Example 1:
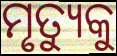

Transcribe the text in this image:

ମୃତ୍ୟୁକୁ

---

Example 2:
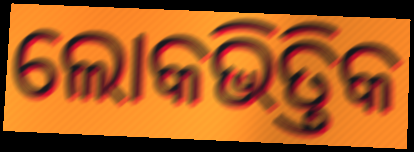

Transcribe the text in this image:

ଲୋକଭିତ୍ତିକ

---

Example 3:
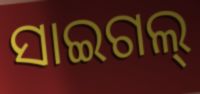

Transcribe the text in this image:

ସାଇଗଲ୍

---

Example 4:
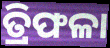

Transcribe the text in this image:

ତ୍ରିଫଳା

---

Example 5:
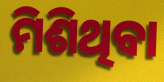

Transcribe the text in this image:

ମିଶିଥିବା